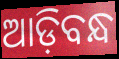
ଆଡ଼ିବନ୍ଧ